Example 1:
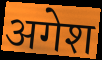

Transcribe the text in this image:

अगेश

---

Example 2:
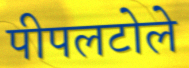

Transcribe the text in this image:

पीपलटोले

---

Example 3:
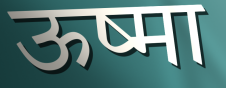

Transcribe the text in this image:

ऊष्‍मा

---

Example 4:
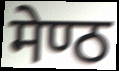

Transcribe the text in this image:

मेण्ठ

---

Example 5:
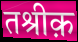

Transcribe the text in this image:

तश्रीक़